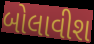
બોલાવીશ